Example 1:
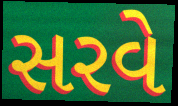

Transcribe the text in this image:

સરવે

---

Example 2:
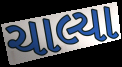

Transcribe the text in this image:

ચાલ્યા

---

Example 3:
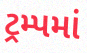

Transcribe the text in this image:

ટ્રમ્પમાં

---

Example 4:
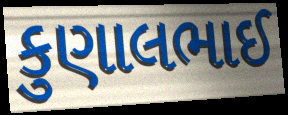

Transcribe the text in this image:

કુણાલભાઈ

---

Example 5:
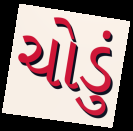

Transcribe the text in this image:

ચોડું